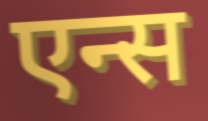
एन्स